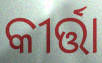
କୀର୍ତ୍ତା